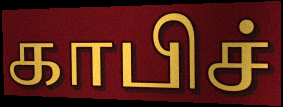
காபிச்